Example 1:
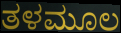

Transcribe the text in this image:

ತಳಮೂಲ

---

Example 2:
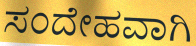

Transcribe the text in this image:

ಸಂದೇಹವಾಗಿ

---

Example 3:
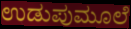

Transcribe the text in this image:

ಉಡುಪುಮೂಲೆ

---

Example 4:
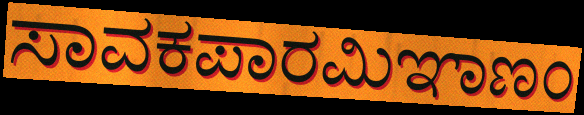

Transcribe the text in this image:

ಸಾವಕಪಾರಮಿಞಾಣಂ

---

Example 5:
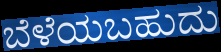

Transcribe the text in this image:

ಬೆಳೆಯಬಹುದು